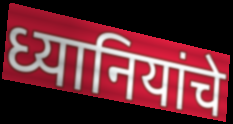
ध्यानियांचे